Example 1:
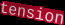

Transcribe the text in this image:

tension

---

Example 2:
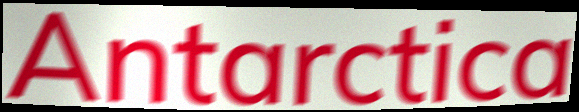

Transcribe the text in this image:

Antarctica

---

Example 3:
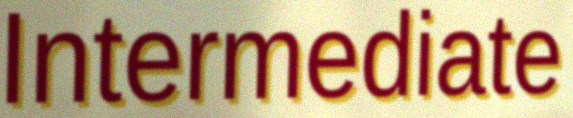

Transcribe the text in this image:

Intermediate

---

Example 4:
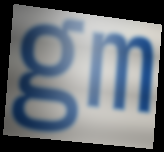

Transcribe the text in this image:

gm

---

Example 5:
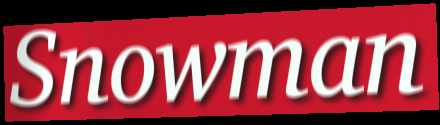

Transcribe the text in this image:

Snowman